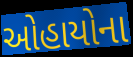
ઓહાયોના